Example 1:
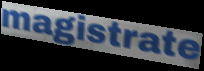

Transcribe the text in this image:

magistrate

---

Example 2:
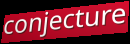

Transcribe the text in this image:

conjecture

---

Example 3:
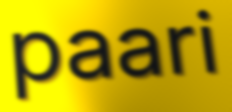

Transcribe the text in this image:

paari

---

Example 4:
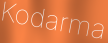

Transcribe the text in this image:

Kodarma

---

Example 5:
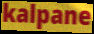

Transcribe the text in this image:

kalpane